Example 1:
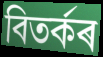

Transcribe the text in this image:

বিতৰ্কৰ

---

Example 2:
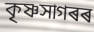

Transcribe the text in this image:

কৃষ্ণসাগৰৰ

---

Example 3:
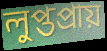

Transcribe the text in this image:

লুপ্তপ্ৰায়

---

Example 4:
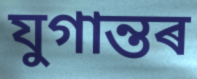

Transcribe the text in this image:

যুগান্তৰ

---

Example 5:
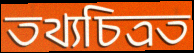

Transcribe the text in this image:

তথ্যচিত্ৰত